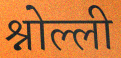
श्नोल्ली